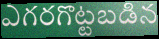
ఎగరగొట్టబడిన